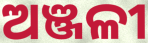
ଅଞ୍ଜଳୀ